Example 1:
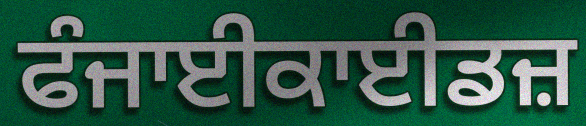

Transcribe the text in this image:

ਫੰਜਾਈਕਾਈਡਜ਼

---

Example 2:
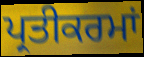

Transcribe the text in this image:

ਪ੍ਰਤੀਕਰਮਾਂ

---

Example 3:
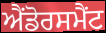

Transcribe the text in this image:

ਐਂਡੋਰਸਮੈਂਟ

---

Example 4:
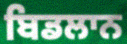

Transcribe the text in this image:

ਬਿਡਲਾਨ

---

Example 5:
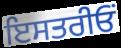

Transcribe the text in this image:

ਇਸਤਰੀਓਂ